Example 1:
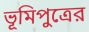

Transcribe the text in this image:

ভূমিপুত্রের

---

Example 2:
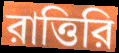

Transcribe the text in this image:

রাত্তিরি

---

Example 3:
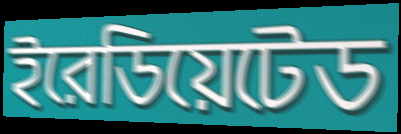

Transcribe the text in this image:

ইরেডিয়েটেড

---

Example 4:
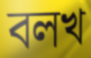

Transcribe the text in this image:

বলখ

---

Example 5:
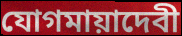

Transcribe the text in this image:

যোগমায়াদেবী